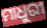
ମାଧୁରୀ